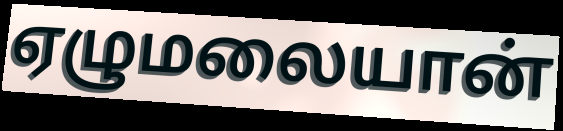
ஏழுமலையான்